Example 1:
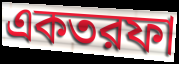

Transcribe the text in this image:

একতরফা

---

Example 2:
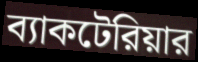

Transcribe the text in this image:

ব্যাকটেরিয়ার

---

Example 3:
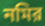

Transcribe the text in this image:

নমির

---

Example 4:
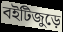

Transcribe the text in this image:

বইটিজুড়ে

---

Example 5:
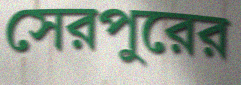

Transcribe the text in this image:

সেরপুরের